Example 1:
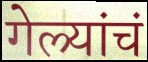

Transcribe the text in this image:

गेल्यांचं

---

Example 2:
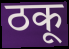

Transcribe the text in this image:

ठकू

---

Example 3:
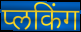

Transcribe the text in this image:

प्लकिंग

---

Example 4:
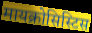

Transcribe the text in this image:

मायक्रोसिस्टिस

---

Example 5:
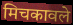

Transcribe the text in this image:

मिचकावले